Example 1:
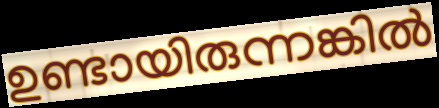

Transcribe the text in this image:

ഉണ്ടായിരുന്നങ്കിൽ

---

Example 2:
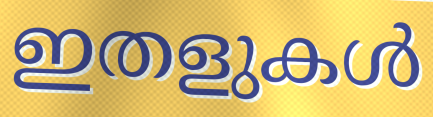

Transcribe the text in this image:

ഇതളുകൾ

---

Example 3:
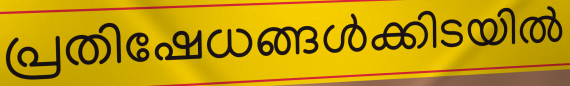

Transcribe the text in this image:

പ്രതിഷേധങ്ങൾക്കിടയിൽ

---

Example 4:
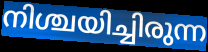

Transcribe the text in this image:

നിശ്ചയിച്ചിരുന്ന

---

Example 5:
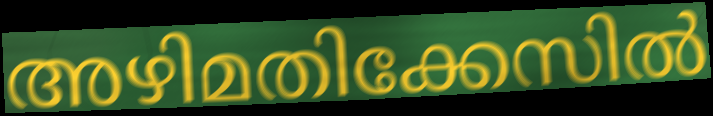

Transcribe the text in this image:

അഴിമതിക്കേസിൽ